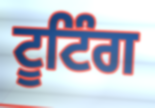
ਟੂਟਿੰਗ